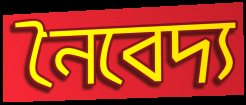
নৈবেদ্য